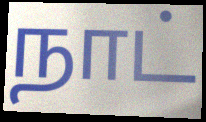
நாட்